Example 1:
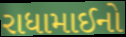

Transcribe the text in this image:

રાધામાઈનો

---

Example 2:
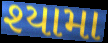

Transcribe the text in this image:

શ્યામા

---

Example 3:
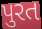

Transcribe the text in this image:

પુરત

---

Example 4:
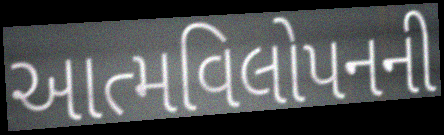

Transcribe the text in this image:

આત્મવિલોપનની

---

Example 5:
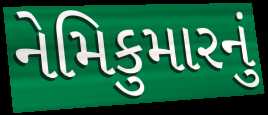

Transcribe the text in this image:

નેમિકુમારનું